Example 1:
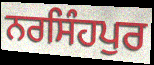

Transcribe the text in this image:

ਨਰਸਿੰਹਪੁਰ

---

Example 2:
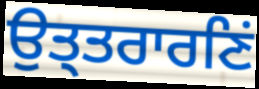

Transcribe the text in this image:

ਉਤ੍ਤਰਾਰਣਿਂ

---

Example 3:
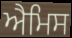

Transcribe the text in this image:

ਐਮਿਸ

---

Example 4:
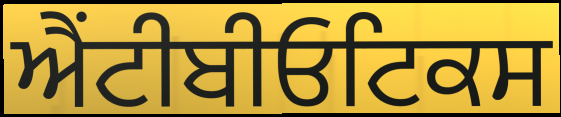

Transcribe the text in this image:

ਐਂਟੀਬੀਓਟਿਕਸ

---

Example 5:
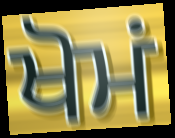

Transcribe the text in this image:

ਖੋਮਂ